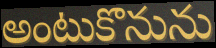
అంటుకొనును